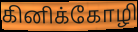
கினிக்கோழி